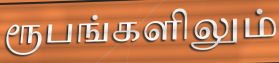
ரூபங்களிலும்